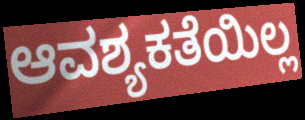
ಆವಶ್ಯಕತೆಯಿಲ್ಲ